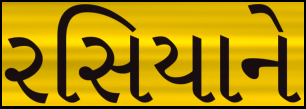
રસિયાને